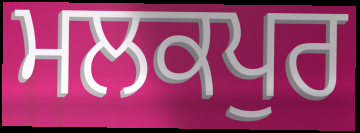
ਮਲਕਪੁਰ